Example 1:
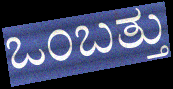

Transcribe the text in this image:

ಒಂಬತ್ತು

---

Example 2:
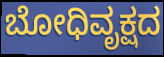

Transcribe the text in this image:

ಬೋಧಿವೃಕ್ಷದ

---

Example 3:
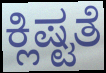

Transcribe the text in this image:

ಕ್ಲಿಷ್ಟತೆ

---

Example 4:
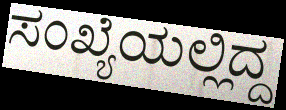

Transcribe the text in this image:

ಸಂಖ್ಯೆಯಲ್ಲಿದ್ದ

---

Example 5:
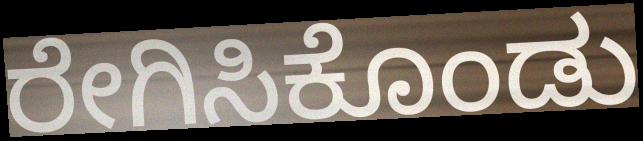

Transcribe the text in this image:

ರೇಗಿಸಿಕೊಂಡು